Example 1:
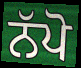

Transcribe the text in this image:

ਨੱਪੋ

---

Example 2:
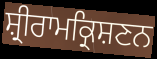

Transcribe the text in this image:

ਸ਼੍ਰੀਰਾਮਕ੍ਰਿਸ਼ਣਨ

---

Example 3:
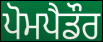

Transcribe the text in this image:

ਪੋਮਪੈਡੌਰ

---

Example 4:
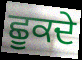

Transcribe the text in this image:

ਛੂਕਦੇ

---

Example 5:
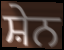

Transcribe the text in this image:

ਸ਼ੇਨ